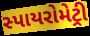
સ્પાયરોમેટ્રી